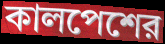
কালপেশের